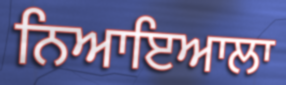
ਨਿਆਇਆਲਾ